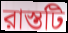
রাস্তটি